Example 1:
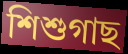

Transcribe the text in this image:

শিশুগাছ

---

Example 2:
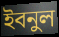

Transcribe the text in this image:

ইবনুল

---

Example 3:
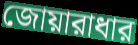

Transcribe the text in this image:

জোয়ারাধার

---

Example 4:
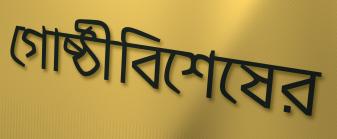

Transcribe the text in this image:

গোষ্ঠীবিশেষের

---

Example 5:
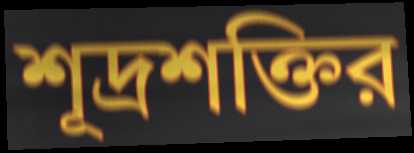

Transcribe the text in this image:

শূদ্রশক্তির